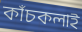
কাঁচকলাই